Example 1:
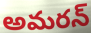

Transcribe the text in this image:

అమరన్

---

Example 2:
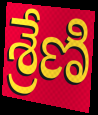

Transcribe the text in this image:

శ్రేణి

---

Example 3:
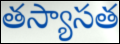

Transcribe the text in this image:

తస్యాసత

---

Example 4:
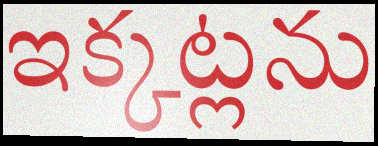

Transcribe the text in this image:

ఇక్కట్లను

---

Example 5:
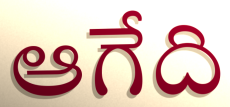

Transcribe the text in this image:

ఆగేది